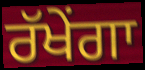
ਰੱਖੇਂਗਾ